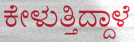
ಕೇಳುತ್ತಿದ್ದಾಳೆ